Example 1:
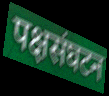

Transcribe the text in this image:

पक्षसंघटन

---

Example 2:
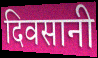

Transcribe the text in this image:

दिवसानी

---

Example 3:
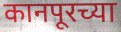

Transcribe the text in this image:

कानपूरच्या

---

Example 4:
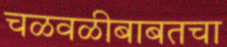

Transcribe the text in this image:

चळवळीबाबतचा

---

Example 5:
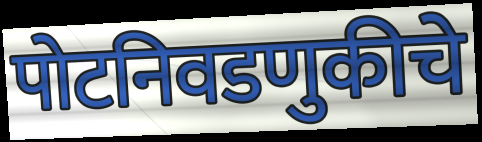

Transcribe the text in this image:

पोटनिवडणुकीचे